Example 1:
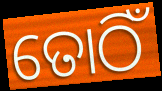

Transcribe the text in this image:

ତୋଠିଁ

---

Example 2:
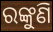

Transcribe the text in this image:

ରଙ୍କୁଣି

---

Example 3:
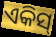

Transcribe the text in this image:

ଏକିସ୍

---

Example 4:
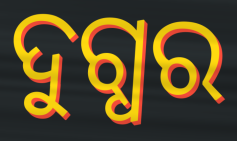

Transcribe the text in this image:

ଦୁଗ୍ଧର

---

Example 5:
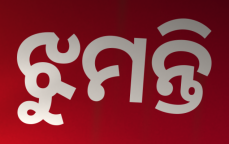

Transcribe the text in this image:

ଝୁମନ୍ତି